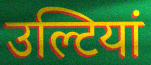
उल्टियां